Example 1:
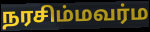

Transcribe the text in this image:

நரசிம்மவர்ம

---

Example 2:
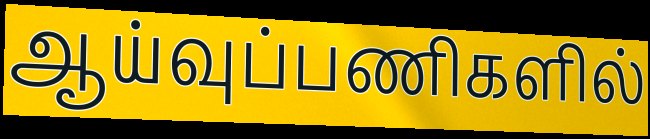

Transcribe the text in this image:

ஆய்வுப்பணிகளில்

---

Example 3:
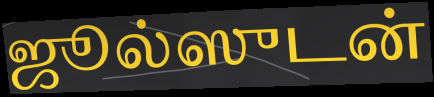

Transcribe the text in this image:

ஜூல்ஸுடன்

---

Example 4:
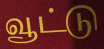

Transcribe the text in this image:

வூட்டு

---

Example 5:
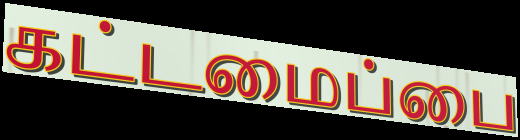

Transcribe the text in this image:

கட்டமைப்பை